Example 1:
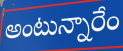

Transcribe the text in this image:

అంటున్నారేం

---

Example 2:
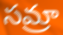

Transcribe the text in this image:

సమ్రా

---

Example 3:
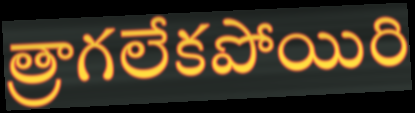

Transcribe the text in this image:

త్రాగలేకపోయిరి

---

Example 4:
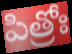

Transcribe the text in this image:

పిత్రోః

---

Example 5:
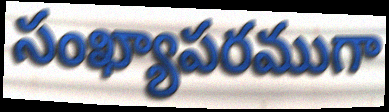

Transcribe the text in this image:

సంఖ్యాపరముగా